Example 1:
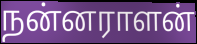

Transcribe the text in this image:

நன்னராளன்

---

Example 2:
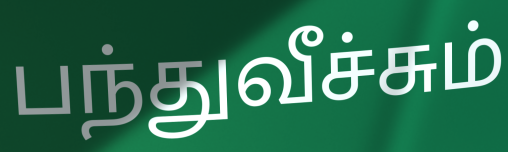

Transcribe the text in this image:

பந்துவீச்சும்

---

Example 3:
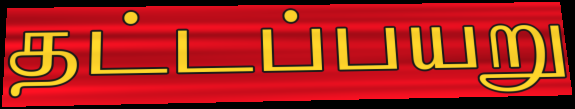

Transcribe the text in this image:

தட்டப்பயறு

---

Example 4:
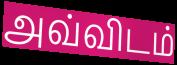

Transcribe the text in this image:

அவ்விடம்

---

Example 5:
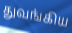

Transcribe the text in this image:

துவங்கிய